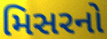
મિસરનો